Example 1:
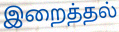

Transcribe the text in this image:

இறைத்தல்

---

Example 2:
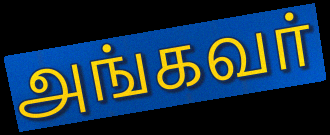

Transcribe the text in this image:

அங்கவர்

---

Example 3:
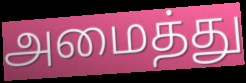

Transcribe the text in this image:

அமைத்து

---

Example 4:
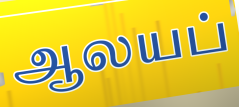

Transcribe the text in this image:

ஆலயப்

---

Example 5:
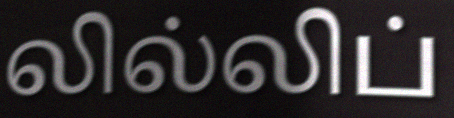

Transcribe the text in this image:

லில்லிப்